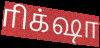
ரிக்‌ஷா